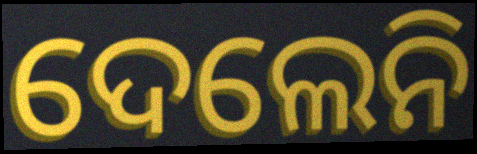
ଦେଲେନି